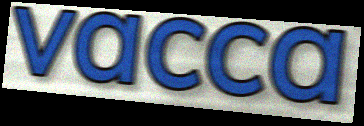
vacca